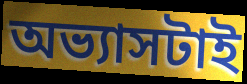
অভ্যাসটাই